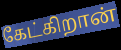
கேட்கிறான்